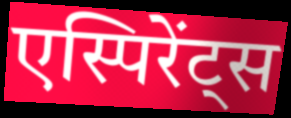
एस्पिरेंट्स